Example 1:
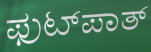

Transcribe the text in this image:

ಫುಟ್‍ಪಾತ್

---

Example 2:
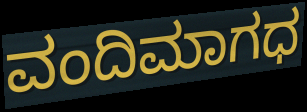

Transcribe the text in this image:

ವಂದಿಮಾಗಧ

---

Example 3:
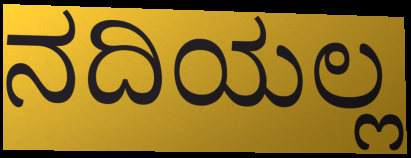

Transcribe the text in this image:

ನದಿಯಲ್ಲ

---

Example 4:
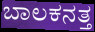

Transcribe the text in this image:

ಬಾಲಕನತ್ತ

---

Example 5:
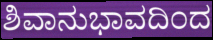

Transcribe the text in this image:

ಶಿವಾನುಭಾವದಿಂದ